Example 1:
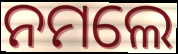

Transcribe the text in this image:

ନମଲେ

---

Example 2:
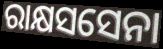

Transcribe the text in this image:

ରାକ୍ଷସସେନା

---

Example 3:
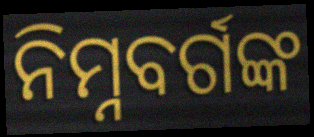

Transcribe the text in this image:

ନିମ୍ନବର୍ଗଙ୍କ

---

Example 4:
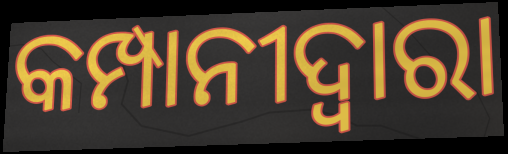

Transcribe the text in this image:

କମ୍ପାନୀଦ୍ୱାରା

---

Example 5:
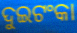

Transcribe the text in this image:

ଦୁଇଟଂକା